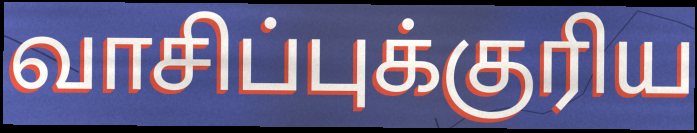
வாசிப்புக்குரிய